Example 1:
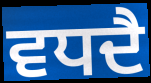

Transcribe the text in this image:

ਵਧਦੈ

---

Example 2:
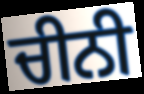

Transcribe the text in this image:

ਚੀਨੀ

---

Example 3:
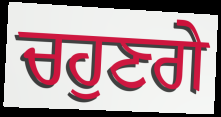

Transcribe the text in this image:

ਚਹੁਣਗੇ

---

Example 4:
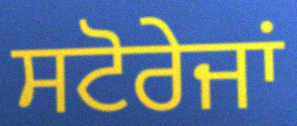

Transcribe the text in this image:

ਸਟੋਰੇਜਾਂ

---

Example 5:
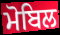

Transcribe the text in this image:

ਮੋਬਿਲ